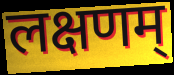
लक्षणम्